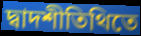
দ্বাদশীতিথিতে